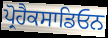
ਪ੍ਰੋਹੈਕਸਾਡਿਓਨ